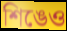
শিঙেও